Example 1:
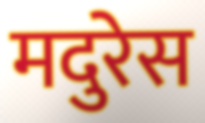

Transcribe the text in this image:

मदुरेस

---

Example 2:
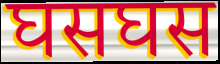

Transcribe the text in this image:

घसघस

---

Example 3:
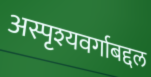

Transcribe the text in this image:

अस्पृश्यवर्गाबद्दल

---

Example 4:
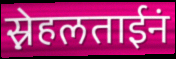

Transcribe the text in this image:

स्नेहलताईनं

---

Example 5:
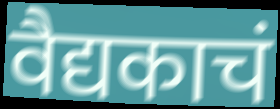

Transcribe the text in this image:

वैद्यकाचं